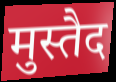
मुस्‍तैद